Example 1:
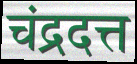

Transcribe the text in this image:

चंद्रदत्त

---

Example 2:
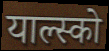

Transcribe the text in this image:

याल्स्को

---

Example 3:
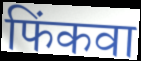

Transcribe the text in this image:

फिंकवा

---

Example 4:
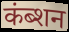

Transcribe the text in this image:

कंब्शन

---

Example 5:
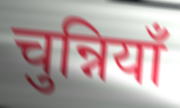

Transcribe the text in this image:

चुन्नियाँ